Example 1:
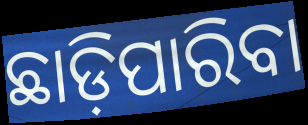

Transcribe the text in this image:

ଛାଡ଼ିପାରିବା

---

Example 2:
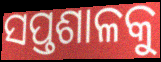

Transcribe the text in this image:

ସପ୍ତଶାଳକୁ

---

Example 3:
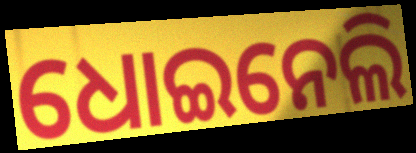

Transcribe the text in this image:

ଧୋଇନେଲି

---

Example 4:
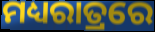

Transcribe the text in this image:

ମଧ୍ୟରାତ୍ରରେ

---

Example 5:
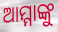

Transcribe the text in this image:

ଆମ୍ମାଙ୍କୁ